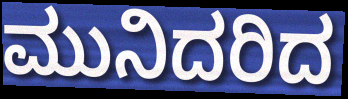
ಮುನಿದರಿದ